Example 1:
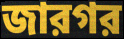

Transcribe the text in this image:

জারগর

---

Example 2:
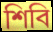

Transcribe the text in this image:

শিবি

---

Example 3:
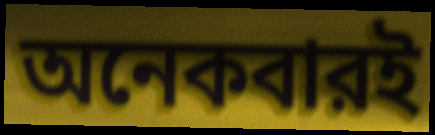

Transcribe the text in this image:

অনেকবারই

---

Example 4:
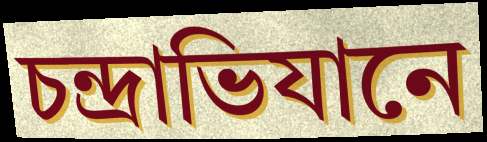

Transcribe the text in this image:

চন্দ্রাভিযানে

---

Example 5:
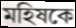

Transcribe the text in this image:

মহিষকে